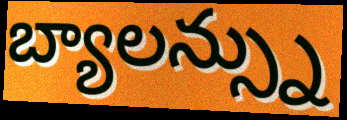
బ్యాలన్స్ను